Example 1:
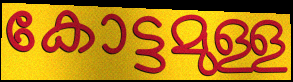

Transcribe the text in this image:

കോട്ടമുള്ള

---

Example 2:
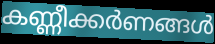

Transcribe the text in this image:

കണ്ണീക്കർണങ്ങൾ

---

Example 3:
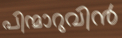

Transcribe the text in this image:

പിന്മാറുവിൻ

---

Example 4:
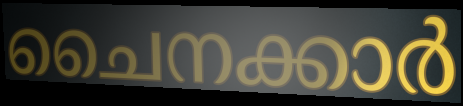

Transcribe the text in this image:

ചൈനക്കാർ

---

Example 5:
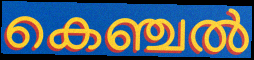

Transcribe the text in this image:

കെഞ്ചൽ